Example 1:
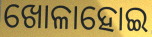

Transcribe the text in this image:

ଖୋଳାହୋଇ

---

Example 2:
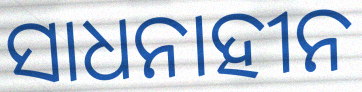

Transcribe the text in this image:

ସାଧନାହୀନ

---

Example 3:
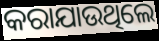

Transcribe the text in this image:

କରାଯାଉଥିଲେ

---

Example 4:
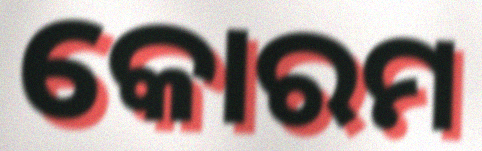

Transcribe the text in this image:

କୋରମ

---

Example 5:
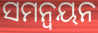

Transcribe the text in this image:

ସମନ୍ୱୟନ